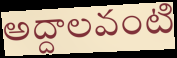
అద్దాలవంటి